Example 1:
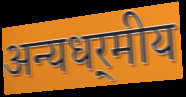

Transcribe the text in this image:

अन्यधर्मीय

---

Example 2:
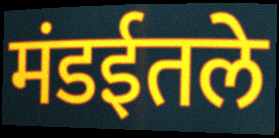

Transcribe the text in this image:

मंडईतले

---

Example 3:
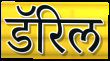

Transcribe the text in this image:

डॅरिल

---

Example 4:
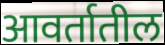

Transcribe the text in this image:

आवर्तातील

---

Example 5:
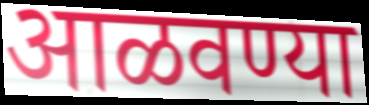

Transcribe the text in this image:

आळवण्या